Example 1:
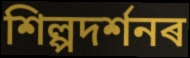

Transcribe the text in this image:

শিল্পদৰ্শনৰ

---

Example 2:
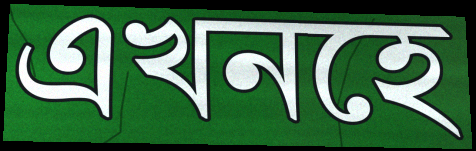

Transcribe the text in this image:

এখনহে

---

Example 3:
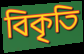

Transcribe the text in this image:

বিকৃতি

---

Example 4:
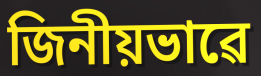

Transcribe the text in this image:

জিনীয়ভাৱে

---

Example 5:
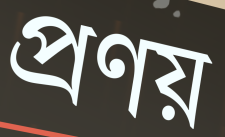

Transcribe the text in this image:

প্ৰণয়